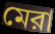
মেরা